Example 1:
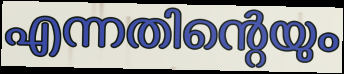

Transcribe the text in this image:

എന്നതിന്റെയും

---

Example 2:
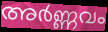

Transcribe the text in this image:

അർണ്ണവം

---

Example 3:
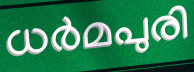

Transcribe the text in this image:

ധർമപുരി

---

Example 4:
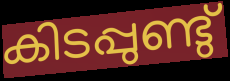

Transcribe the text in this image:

കിടപ്പുണ്ടു്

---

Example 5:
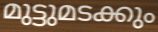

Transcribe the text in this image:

മുട്ടുമടക്കും